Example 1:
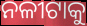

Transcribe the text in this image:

ନଳୀଟାକୁ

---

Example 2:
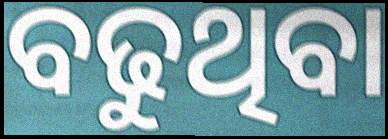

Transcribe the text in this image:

ବଢୁଥିବା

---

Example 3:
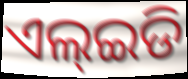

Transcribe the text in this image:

ଏଲ୍ଇଡି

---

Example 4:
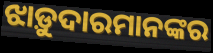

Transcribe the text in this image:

ଝାଡ଼ୁଦାରମାନଙ୍କର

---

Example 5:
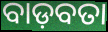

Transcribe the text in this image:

ବାଡ଼ବତା